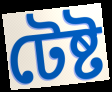
টেষ্ট